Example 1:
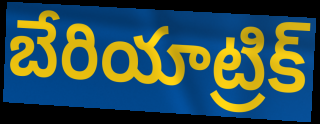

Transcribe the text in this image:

బేరియాట్రిక్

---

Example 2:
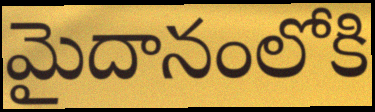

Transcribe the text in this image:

మైదానంలోకి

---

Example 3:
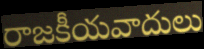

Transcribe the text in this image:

రాజకీయవాదులు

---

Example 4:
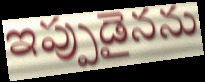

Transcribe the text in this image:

ఇప్పుడైనను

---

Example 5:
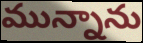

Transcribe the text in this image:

మున్నాను